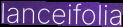
lanceifolia